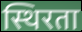
स्थिरता